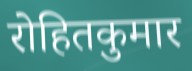
रोहितकुमार